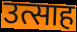
उत्साह